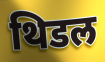
थिडल